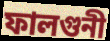
ফালগুনী